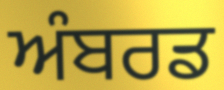
ਅੰਬਰਡ